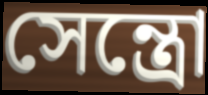
সেন্ত্রো